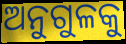
ଅନୁଗୁଳକୁ